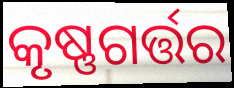
କୃଷ୍ଣଗର୍ତ୍ତର